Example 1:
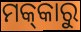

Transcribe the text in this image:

ମକ୍‌କାରୁ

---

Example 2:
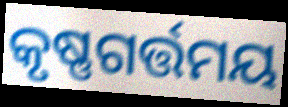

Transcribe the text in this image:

କୃଷ୍ଣଗର୍ତ୍ତମୟ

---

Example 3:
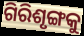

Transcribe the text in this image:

ଗିରିଶୃଙ୍ଗକୁ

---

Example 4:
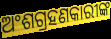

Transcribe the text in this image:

ଅଂଶଗ୍ରହଣକାରୀଙ୍କ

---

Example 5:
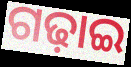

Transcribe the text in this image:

ଗଢ଼ାଇ